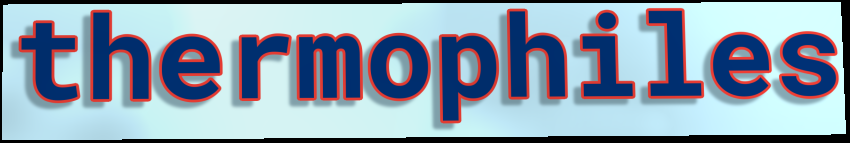
thermophiles